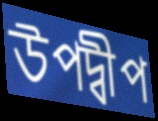
উপদ্বীপ